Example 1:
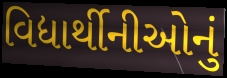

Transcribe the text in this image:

વિદ્યાર્થીનીઓનું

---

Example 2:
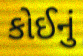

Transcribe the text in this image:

કોઈનું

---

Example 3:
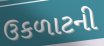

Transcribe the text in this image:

ઉકળાટની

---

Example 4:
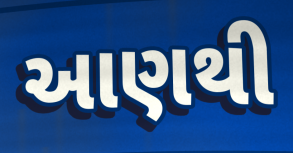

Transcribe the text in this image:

આણથી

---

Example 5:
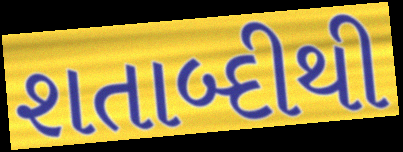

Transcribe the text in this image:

શતાબ્દીથી